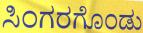
ಸಿಂಗರಗೊಂಡು